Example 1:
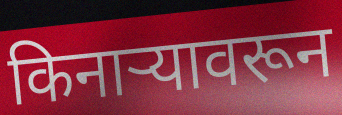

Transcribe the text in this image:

किनाऱ्यावरून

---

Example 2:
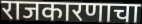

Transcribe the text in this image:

राजकारणाचा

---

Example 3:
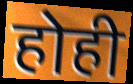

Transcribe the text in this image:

होही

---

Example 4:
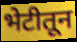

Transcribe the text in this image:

भेटीतून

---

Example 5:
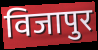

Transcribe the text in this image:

विजापुर